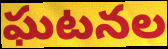
ఘటనల